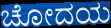
ಚೋದಯ